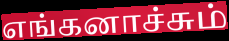
எங்கனாச்சும்